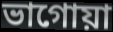
ভাগোয়া